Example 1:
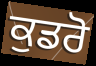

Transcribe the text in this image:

ਕੁਡਰੋ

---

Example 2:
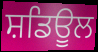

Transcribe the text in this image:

ਸ਼ਡਿਊਲ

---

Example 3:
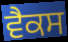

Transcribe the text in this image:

ਵੈਕਸ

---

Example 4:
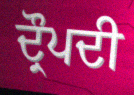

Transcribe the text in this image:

ਦ੍ਰੌਪਦੀ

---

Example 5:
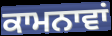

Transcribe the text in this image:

ਕਾਮਨਾਵਾਂ